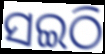
ସଇଠି